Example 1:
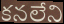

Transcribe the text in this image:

కనలేని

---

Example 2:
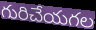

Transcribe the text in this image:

గురిచేయగల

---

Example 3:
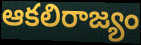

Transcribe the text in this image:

ఆకలిరాజ్యం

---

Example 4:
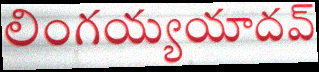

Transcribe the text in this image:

లింగయ్యయాదవ్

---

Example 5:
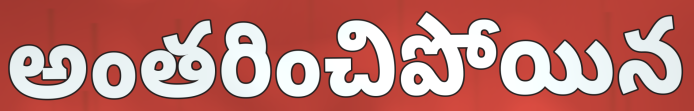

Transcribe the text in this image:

అంతరించిపోయిన